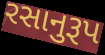
રસાનુરૂપ